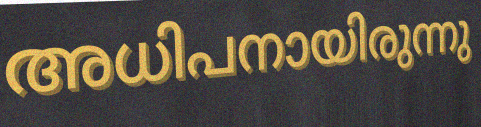
അധിപനായിരുന്നു